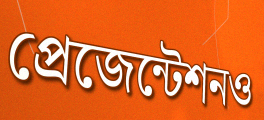
প্রেজেন্টেশনও